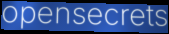
opensecrets